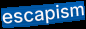
escapism